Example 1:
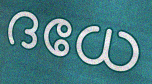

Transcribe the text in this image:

ദധേ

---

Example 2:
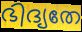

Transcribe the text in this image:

ഭിദ്യതേ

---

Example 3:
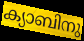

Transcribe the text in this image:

ക്യാബിനു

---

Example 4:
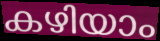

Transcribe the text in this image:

കഴിയാം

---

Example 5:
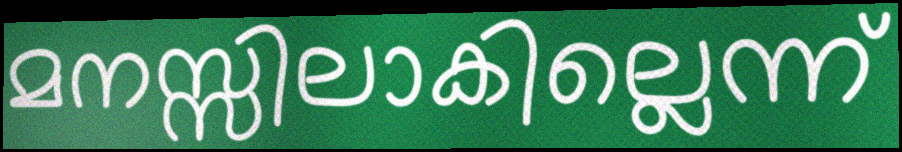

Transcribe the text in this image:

മനസ്സിലാകില്ലെന്ന്